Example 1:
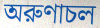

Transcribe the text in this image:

অরুণাচল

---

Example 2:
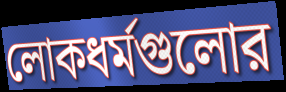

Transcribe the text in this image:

লোকধর্মগুলোর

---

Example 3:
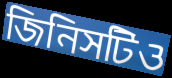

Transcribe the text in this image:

জিনিসটিও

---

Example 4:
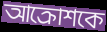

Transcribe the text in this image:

আক্রোশকে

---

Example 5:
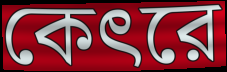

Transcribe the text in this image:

কেৎরে